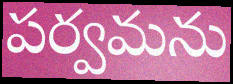
పర్వమను